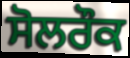
ਸੋਲਰੌਕ